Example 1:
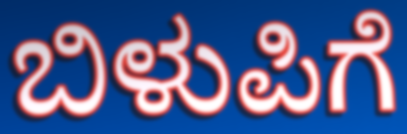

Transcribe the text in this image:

ಬಿಳುಪಿಗೆ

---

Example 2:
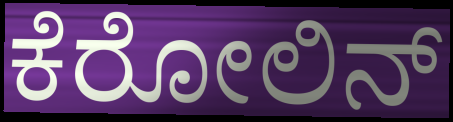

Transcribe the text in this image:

ಕೆರೋಲಿನ್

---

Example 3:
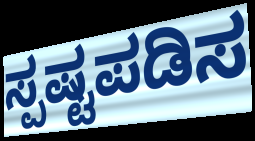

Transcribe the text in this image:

ಸ್ಪಷ್ಟಪಡಿಸ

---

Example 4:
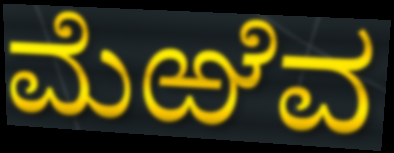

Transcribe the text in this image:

ಮೆಱೆವ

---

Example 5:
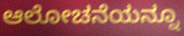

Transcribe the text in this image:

ಆಲೋಚನೆಯನ್ನೂ